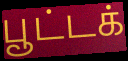
பூட்டக்